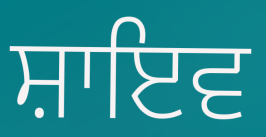
ਸ਼ਾਇਵ